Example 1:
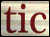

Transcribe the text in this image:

tic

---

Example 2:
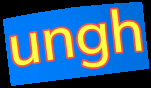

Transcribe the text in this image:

ungh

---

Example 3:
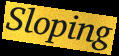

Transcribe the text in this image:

Sloping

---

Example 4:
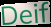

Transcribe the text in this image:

Deif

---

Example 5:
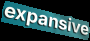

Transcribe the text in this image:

expansive